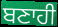
ਬਣਾਹੀ